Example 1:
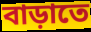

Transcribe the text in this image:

বাড়াতে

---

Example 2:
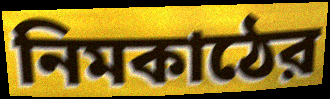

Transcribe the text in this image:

নিমকাঠের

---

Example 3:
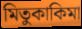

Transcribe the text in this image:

মিতুকাকিমা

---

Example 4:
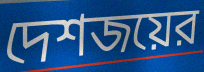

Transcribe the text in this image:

দেশজয়ের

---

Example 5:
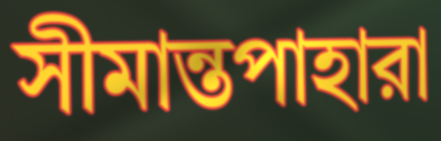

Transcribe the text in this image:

সীমান্তপাহারা